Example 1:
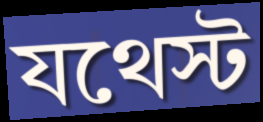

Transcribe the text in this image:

যথেস্ট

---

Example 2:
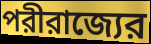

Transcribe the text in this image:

পরীরাজ্যের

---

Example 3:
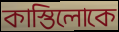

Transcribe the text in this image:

কাস্তিলোকে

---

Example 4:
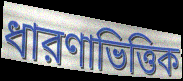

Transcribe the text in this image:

ধারণাভিত্তিক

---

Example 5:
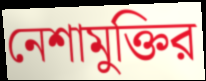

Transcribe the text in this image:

নেশামুক্তির